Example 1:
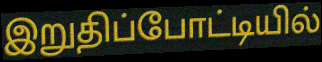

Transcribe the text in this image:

இறுதிப்போட்டியில்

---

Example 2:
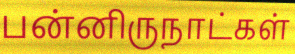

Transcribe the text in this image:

பன்னிருநாட்கள்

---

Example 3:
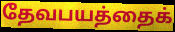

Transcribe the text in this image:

தேவபயத்தைக்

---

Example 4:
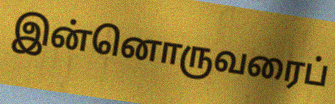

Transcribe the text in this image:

இன்னொருவரைப்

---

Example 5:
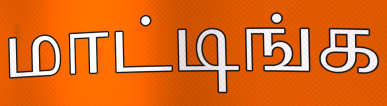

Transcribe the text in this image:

மாட்டிங்க